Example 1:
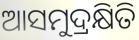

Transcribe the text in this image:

ଆସମୁଦ୍ରକ୍ଷିତି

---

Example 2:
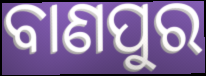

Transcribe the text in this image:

ବାଣପୁର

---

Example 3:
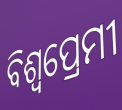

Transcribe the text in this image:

ବିଶ୍ବପ୍ରେମୀ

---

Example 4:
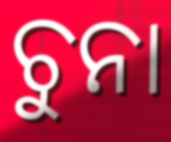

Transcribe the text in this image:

ଚୁନା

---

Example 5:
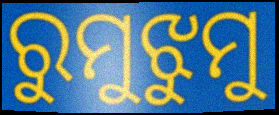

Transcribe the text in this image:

ରୁମୁଝୁମୁ